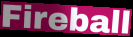
Fireball